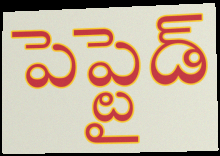
పెప్టైడ్